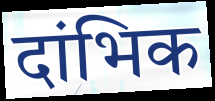
दांभिक